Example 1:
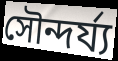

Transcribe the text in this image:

সৌন্দৰ্য্য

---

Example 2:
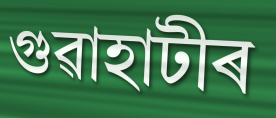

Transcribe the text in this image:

গুৱাহাটীৰ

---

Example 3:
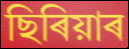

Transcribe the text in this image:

ছিৰিয়াৰ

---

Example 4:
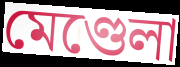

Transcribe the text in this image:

মেণ্ডেলা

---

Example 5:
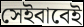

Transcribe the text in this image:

সেইবাবেই